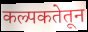
कल्पकतेतून